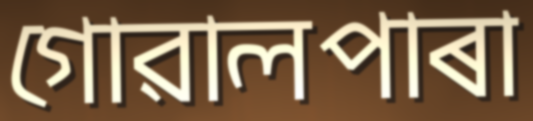
গোৱালপাৰা